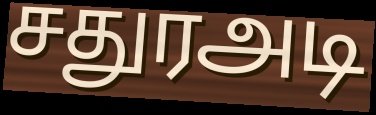
சதுரஅடி